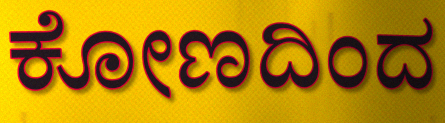
ಕೋಣದಿಂದ